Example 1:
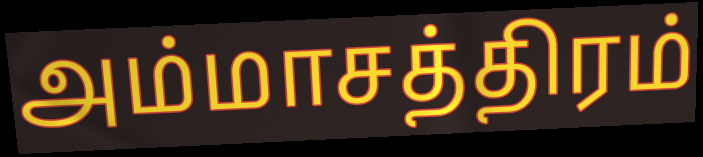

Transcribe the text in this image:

அம்மாசத்திரம்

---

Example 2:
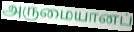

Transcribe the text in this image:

அருமையானப்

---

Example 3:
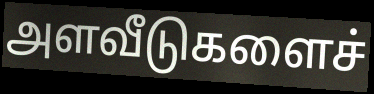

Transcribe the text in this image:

அளவீடுகளைச்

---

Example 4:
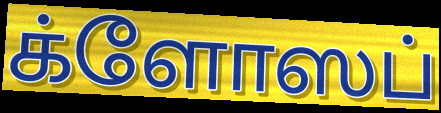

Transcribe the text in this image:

க்ளோஸப்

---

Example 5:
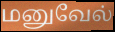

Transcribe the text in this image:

மனுவேல்